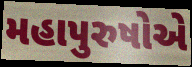
મહાપુરુષોએ